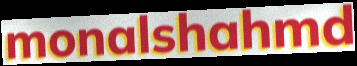
monalshahmd